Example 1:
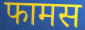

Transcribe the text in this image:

फामस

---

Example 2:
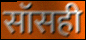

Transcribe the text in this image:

सॉसही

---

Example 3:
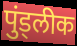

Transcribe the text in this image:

पुंड्लीक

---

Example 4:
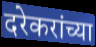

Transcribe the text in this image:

दरेकरांच्या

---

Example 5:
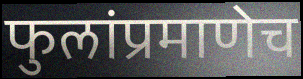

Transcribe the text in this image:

फुलांप्रमाणेच